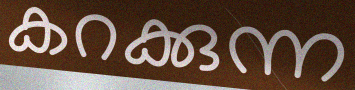
കറക്കുന്ന